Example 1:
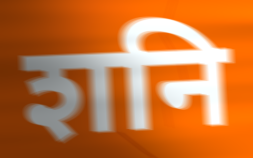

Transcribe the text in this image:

शनि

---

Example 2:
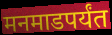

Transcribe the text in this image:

मनमाडपर्यंत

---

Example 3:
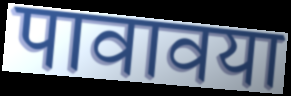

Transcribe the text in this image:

पावावया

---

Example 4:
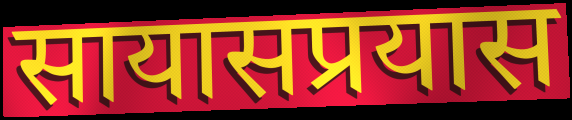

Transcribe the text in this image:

सायासप्रयास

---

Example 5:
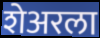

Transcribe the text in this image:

शेअरला